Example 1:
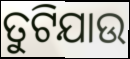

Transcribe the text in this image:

ତୁଟିଯାଉ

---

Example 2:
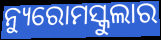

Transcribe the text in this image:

ନ୍ୟୁରୋମସ୍କୁଲାର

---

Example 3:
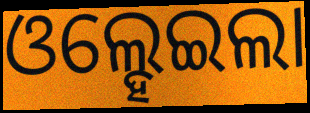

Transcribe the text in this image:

ଓଲ୍ହେଇଲା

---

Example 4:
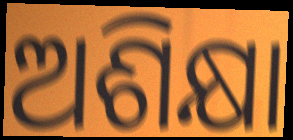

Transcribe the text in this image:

ଅଶିକ୍ଷା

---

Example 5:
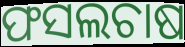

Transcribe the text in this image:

ଫସଲଚାଷ